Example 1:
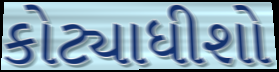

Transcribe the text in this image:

કોટ્યાધીશો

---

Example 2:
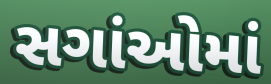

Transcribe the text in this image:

સગાંઓમાં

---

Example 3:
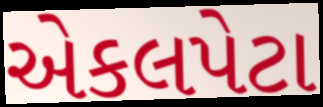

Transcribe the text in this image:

એકલપેટા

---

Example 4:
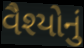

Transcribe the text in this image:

વૈશ્યોનું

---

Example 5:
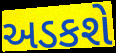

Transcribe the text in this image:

અડકશે